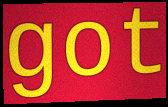
got